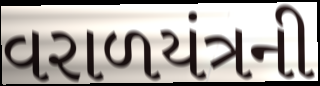
વરાળયંત્રની